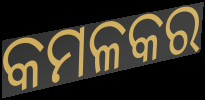
କମଳକର